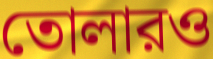
তোলারও